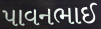
પાવનભાઈ